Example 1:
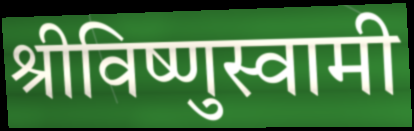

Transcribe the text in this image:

श्रीविष्णुस्वामी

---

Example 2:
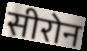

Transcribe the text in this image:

सीरोन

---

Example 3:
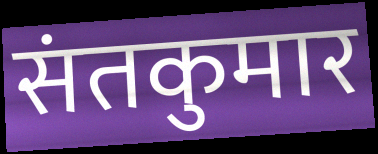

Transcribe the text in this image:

संतकुमार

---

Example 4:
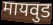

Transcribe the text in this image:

मायवुड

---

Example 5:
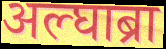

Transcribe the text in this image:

अल्घाब्रा